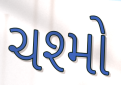
ચશ્મો